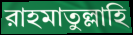
রাহমাতুল্লাহি